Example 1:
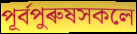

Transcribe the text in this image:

পূৰ্বপুৰুষসকলে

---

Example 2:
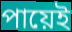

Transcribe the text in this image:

পায়েই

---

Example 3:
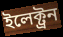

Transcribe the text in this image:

ইলেক্ট্ৰন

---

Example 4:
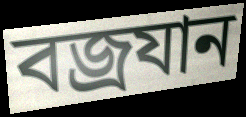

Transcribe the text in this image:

বজ্ৰযান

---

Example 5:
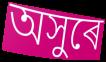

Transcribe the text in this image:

অসুৰে